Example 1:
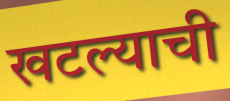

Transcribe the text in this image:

खटल्याची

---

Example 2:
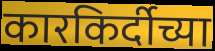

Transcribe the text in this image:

कारकिर्दीच्या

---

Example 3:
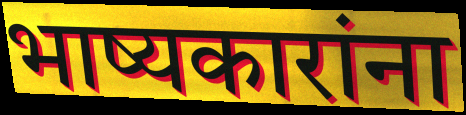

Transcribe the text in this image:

भाष्यकारांना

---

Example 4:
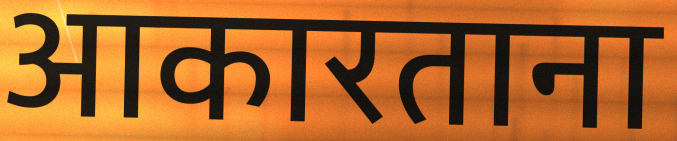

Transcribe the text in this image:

आकारताना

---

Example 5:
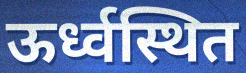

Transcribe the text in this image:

ऊर्ध्वस्थित